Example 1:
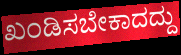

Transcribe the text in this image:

ಖಂಡಿಸಬೇಕಾದದ್ದು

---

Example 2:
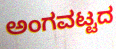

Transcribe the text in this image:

ಅಂಗವಟ್ಟದ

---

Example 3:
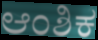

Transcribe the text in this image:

ಆಂಶಿಕ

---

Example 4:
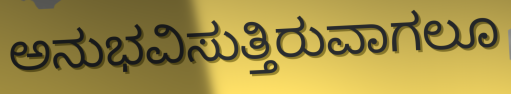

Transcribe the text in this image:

ಅನುಭವಿಸುತ್ತಿರುವಾಗಲೂ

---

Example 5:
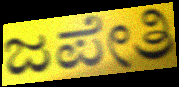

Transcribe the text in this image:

ಜಪೇತಿ